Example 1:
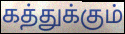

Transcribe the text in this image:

கத்துக்கும்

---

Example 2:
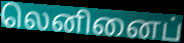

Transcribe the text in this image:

லெனினைப்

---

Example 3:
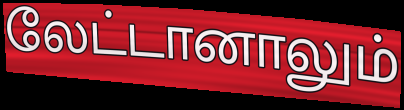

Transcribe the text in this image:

லேட்டானாலும்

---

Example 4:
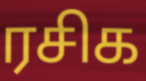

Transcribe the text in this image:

ரசிக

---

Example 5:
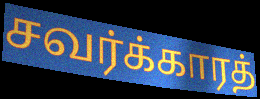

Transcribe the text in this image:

சவர்க்காரத்